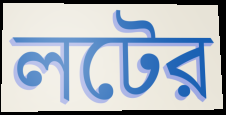
লটের